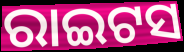
ରାଇଟସ